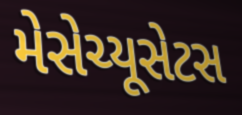
મેસેચ્યૂસેટસ